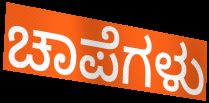
ಚಾಪೆಗಳು